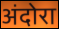
अंदोरा